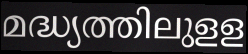
മദ്ധ്യത്തിലുളള